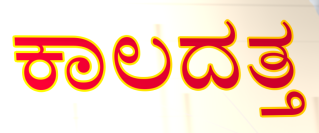
ಕಾಲದತ್ತ